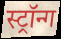
स्ट्रॉन्ग